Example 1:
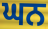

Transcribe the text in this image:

ਘਨ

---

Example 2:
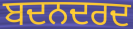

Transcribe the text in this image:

ਬਦਨਦਰਦ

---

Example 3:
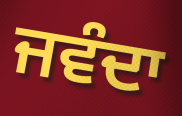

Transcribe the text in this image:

ਜਵੰਦਾ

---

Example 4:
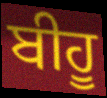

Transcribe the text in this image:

ਬੀਹੂ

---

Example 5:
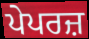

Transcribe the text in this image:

ਪੇਪਰਜ਼